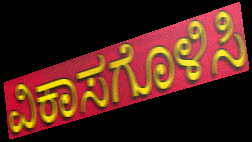
ವಿಕಾಸಗೊಳಿಸಿ